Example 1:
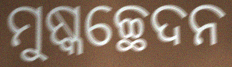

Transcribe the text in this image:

ମୁଷ୍କଚ୍ଛେଦନ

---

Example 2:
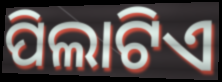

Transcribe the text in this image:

ପିଲାଟିଏ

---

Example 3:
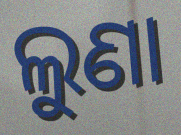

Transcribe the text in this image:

ଲୁଣା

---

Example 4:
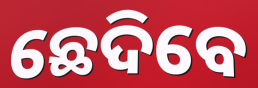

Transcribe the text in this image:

ଛେଦିବେ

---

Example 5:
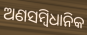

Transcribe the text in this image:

ଅଣସମ୍ବିଧାନିକ